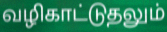
வழிகாட்டுதலும்